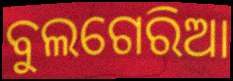
ବୁଲଗେରିଆ